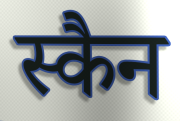
स्कैन